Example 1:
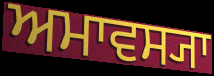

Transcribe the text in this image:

ਅਮਾਵਸ੍ਯਾ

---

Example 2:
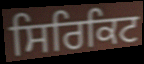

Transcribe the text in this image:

ਸਿਰਿਕਿਟ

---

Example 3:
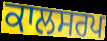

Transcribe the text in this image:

ਕਾਲਸਰਪ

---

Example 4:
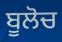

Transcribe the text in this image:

ਬੂਲੋਚ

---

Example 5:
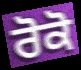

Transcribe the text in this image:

ਰੋਕੋ